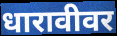
धारावीवर